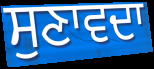
ਸੁਣਾਵਦਾ